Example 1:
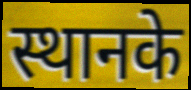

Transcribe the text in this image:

स्थानके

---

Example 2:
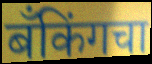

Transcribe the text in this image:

बँकिंगचा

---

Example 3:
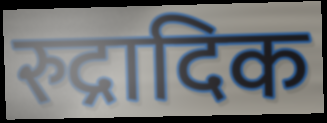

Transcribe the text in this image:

रुद्रादिक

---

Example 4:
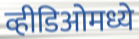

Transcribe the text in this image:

व्हीडिओमध्ये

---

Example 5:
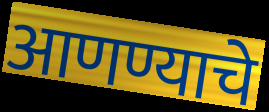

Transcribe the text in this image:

आणण्याचे